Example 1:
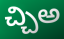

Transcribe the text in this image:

చ్చిఅ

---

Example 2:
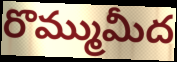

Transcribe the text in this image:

రొమ్ముమీద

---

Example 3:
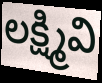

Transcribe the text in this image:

లక్ష్మివి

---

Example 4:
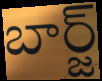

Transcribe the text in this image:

బార్జ్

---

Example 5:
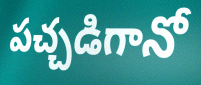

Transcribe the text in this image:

పచ్చడిగానో